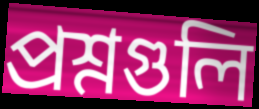
প্রশ্নগুলি